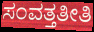
ಸಂವತ್ತತೀತಿ